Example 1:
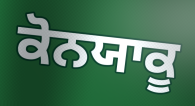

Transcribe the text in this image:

ਕੋਨਯਾਕੂ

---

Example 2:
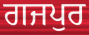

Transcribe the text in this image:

ਗਜਪੁਰ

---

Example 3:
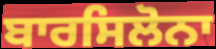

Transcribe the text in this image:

ਬਾਰਸਿਲੋਨਾ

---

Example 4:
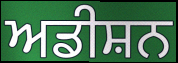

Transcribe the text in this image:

ਅਡੀਸ਼ਨ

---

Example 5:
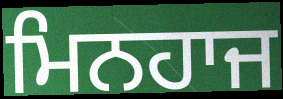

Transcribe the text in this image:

ਮਿਨਹਾਜ